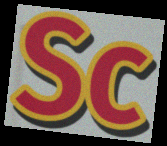
Sc